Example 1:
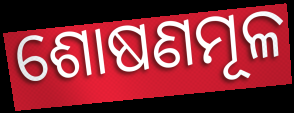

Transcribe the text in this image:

ଶୋଷଣମୂଳ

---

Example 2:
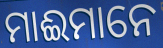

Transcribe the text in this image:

ମାଈମାନେ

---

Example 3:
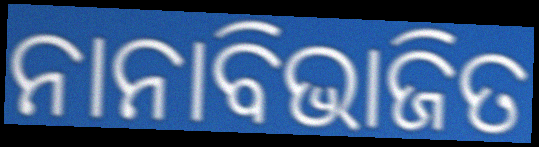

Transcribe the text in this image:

ନାନାବିଭାଜିତ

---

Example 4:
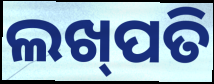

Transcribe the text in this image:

ଲଖ୍‌ପତି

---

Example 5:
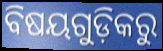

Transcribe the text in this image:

ବିଷୟଗୁଡ଼ିକରୁ